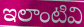
ఇలాంటివి